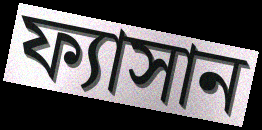
ফ্যাসান